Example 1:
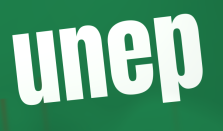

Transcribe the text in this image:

unep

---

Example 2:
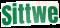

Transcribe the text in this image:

Sittwe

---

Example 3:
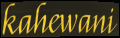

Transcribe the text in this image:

kahewani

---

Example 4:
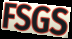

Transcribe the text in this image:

FSGS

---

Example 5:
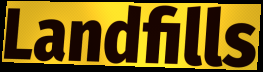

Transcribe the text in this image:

Landfills